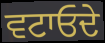
ਵਟਾਓਦੇ